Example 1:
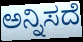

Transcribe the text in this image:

ಅನ್ನಿಸದೆ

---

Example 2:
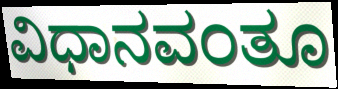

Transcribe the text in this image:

ವಿಧಾನವಂತೂ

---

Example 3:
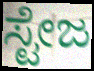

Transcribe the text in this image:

ಸ್ಟೇಜ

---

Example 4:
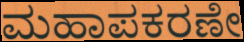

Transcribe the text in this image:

ಮಹಾಪಕರಣೇ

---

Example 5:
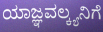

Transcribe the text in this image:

ಯಾಜ್ಞವಲ್ಕ್ಯನಿಗೆ